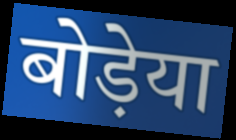
बोड़ेया